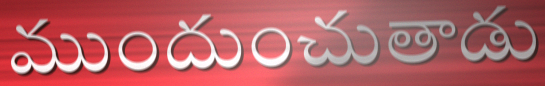
ముందుంచుతాడు